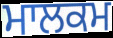
ਮਾਲਕਮ